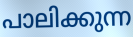
പാലിക്കുന്ന